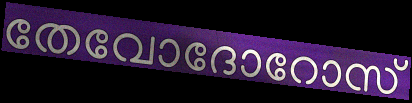
തേവോദോറോസ്